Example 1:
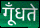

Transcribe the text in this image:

गूँधते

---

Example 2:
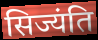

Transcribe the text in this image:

सिज्यंति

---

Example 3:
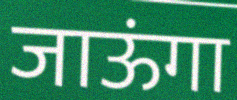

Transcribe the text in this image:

जाऊंगा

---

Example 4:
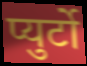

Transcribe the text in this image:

प्युर्टो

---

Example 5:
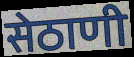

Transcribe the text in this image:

सेठाणी